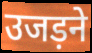
उजड़ने